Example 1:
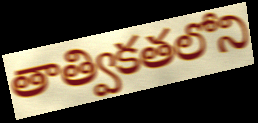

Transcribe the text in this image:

తాత్వికతలోని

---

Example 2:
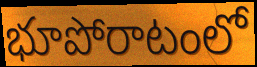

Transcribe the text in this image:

భూపోరాటంలో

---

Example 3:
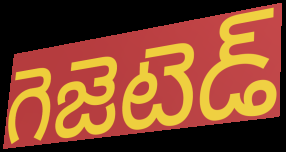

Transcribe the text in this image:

గెజెటెడ్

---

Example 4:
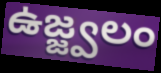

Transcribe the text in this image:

ఉజ్జ్వలం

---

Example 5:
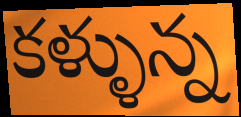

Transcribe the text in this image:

కళ్ళున్న